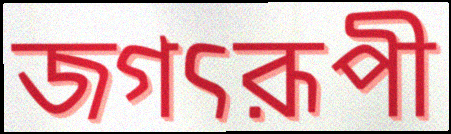
জগৎরূপী